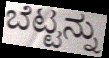
ಬೆಟ್ಟನ್ನು